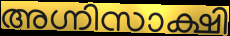
അഗ്നിസാക്ഷി